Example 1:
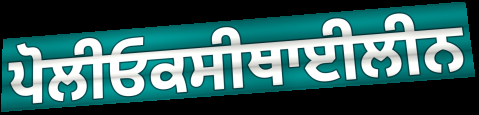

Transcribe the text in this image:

ਪੋਲੀਓਕਸੀਥਾਈਲੀਨ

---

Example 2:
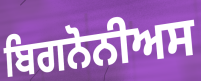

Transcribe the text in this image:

ਬਿਗਨੋਨੀਅਸ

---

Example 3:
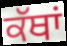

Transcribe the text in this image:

ਕੱਥਾਂ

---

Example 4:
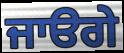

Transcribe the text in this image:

ਜਾੳਗੇ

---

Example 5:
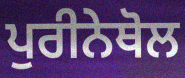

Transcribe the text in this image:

ਪੁਰੀਨੇਥੋਲ